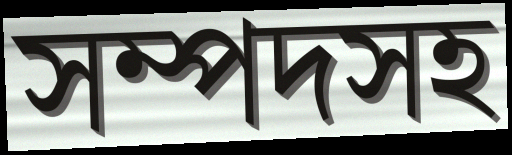
সম্পদসহ